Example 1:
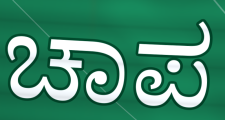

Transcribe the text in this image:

ಚಾಪ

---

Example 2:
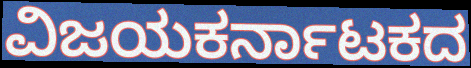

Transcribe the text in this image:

ವಿಜಯಕರ್ನಾಟಕದ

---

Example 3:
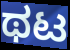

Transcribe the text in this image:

ಥಟ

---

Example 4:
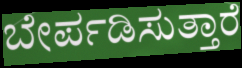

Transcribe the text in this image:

ಬೇರ್ಪಡಿಸುತ್ತಾರೆ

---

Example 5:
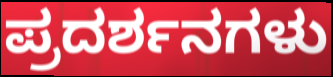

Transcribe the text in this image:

ಪ್ರದರ್ಶನಗಳು